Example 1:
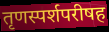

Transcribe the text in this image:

तृणस्पर्शपरीषह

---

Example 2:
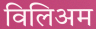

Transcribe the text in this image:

विलिअम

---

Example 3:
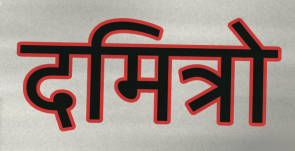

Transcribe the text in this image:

दमित्रो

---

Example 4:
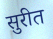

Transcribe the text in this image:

सुरीत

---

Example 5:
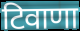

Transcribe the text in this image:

टिवाणा